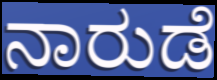
ನಾರುಡೆ